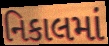
નિકાલમાં